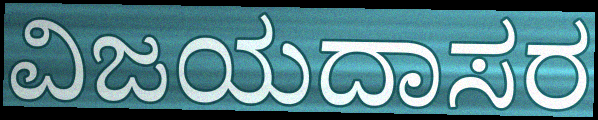
ವಿಜಯದಾಸರ